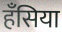
हँसिया